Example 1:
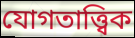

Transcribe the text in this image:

যোগতাত্ত্বিক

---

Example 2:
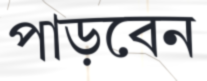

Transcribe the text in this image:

পাড়বেন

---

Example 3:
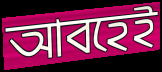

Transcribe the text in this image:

আবহেই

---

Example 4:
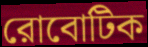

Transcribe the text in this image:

রোবোটিক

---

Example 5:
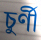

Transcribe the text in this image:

চুর্ণী